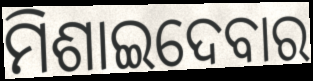
ମିଶାଇଦେବାର